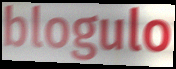
blogulo